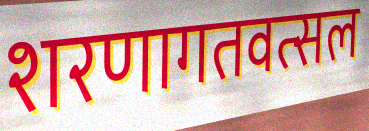
शरणागतवत्सल